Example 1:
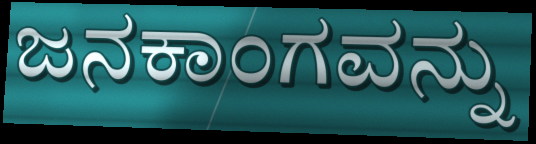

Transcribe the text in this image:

ಜನಕಾಂಗವನ್ನು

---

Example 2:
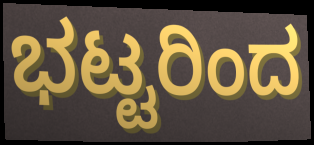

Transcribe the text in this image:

ಭಟ್ಟರಿಂದ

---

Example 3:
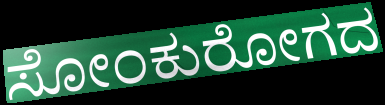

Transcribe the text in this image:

ಸೋಂಕುರೋಗದ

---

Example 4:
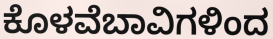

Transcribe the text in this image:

ಕೊಳವೆಬಾವಿಗಳಿಂದ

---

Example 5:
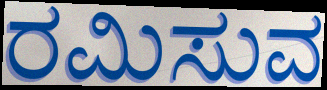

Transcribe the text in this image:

ರಮಿಸುವ